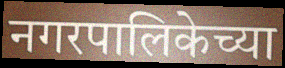
नगरपालिकेच्या